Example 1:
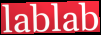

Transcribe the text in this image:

lablab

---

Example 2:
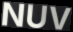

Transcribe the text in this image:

NUV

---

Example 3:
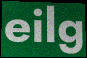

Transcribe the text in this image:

eilg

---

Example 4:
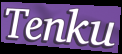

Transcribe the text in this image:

Tenku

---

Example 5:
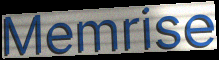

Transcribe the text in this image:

Memrise